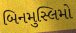
બિનમુસ્લિમો